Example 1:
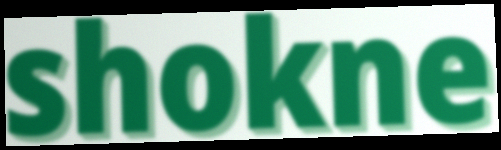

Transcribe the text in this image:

shokne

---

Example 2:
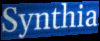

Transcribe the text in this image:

Synthia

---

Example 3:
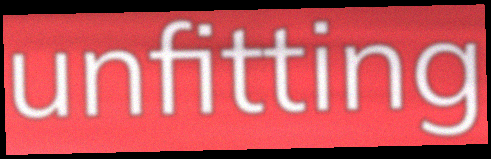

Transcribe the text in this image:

unfitting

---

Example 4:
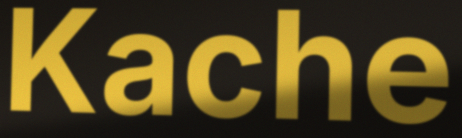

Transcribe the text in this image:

Kache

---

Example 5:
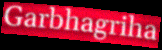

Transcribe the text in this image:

Garbhagriha